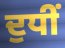
ਦੁਧੀਂ